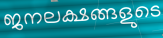
ജനലക്ഷങ്ങളുടെ